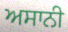
ਅਸਾਨੀ